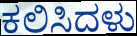
ಕಲಿಸಿದಳು